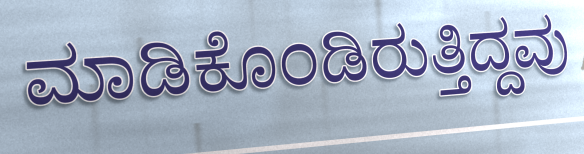
ಮಾಡಿಕೊಂಡಿರುತ್ತಿದ್ದವು